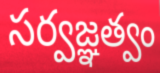
సర్వజ్ఞత్వం